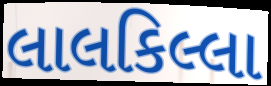
લાલકિલ્લા